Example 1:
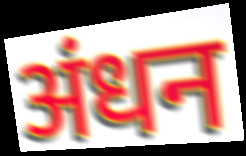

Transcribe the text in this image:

अंधन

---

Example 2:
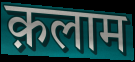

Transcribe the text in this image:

क़लाम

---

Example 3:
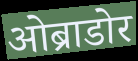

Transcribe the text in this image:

ओब्राडोर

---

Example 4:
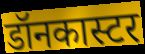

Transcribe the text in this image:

डॉनकास्टर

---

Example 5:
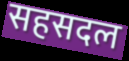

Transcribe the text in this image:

सहसदल